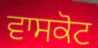
ਵਾਸਕੋਟ